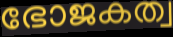
ഭോജകത്വ